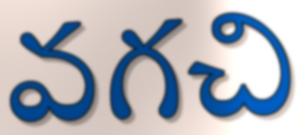
వగచి